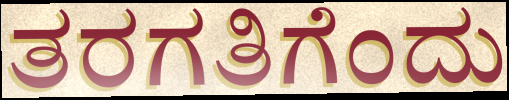
ತರಗತಿಗೆಂದು